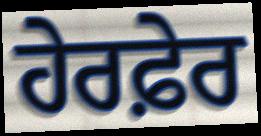
ਹੇਰਫ਼ੇਰ